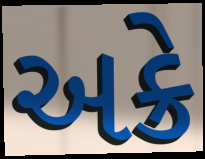
અક્રે